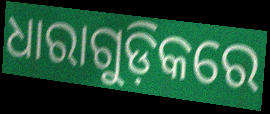
ଧାରାଗୁଡ଼ିକରେ